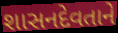
શાસનદેવતાને